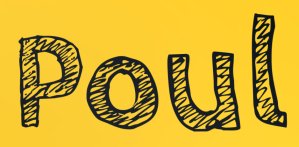
Poul